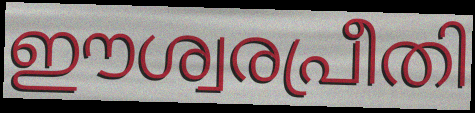
ഈശ്വരപ്രീതി